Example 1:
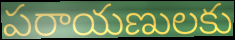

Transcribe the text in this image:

పరాయణులకు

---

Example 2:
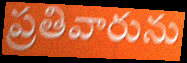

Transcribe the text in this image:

ప్రతివారును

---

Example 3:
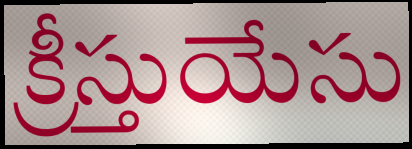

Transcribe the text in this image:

క్రీస్తుయేసు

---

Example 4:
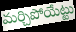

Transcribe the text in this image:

మర్చిపోయేట్టు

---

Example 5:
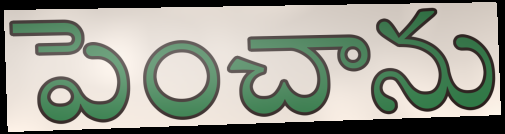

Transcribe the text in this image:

పెంచాను